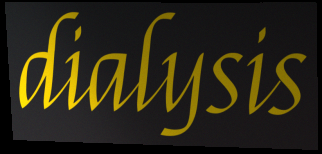
dialysis